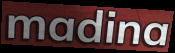
madina